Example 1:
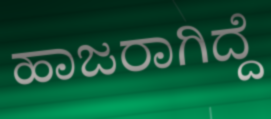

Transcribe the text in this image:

ಹಾಜರಾಗಿದ್ದೆ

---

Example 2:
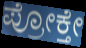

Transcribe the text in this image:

ಪ್ರೋಕ್ತೇ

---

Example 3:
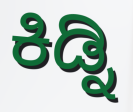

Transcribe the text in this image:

ಕಿಡ್ನಿ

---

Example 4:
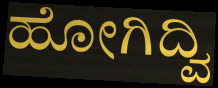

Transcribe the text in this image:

ಹೋಗಿದ್ವಿ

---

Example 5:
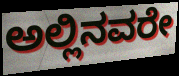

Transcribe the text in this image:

ಅಲ್ಲಿನವರೇ